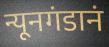
न्यूनगंडानं